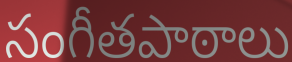
సంగీతపాఠాలు